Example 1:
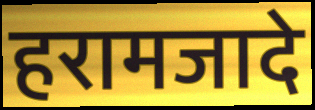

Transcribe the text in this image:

हरामजादे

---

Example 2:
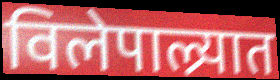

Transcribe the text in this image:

विलेपाल्र्यात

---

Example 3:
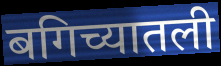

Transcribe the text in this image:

बगिच्यातली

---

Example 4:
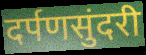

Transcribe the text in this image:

दर्पणसुंदरी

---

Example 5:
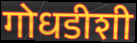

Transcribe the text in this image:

गोधडीशी